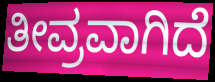
ತೀವ್ರವಾಗಿದೆ